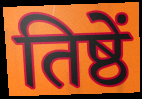
तिष्ठें